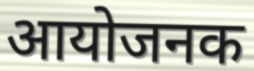
आयोजनक